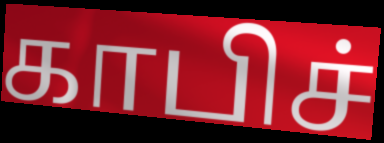
காபிச்